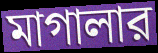
মাগালার